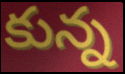
కున్న